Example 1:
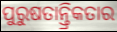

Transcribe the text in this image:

ପୁରୁଷତାନ୍ତ୍ରିକତାର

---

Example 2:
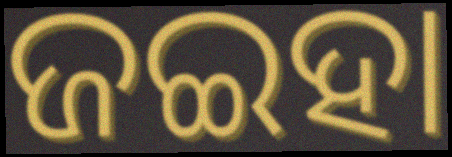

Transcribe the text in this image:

ଜଇହା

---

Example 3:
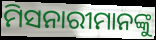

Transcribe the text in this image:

ମିସନାରୀମାନଙ୍କୁ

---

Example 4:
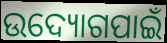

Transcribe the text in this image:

ଉଦ୍ୟୋଗପାଇଁ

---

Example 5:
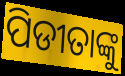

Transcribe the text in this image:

ପିଡୀତାଙ୍କୁ